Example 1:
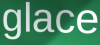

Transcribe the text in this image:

glace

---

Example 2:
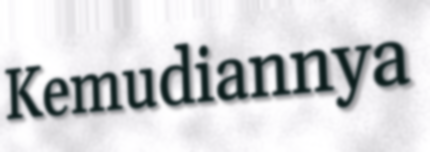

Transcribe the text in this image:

Kemudiannya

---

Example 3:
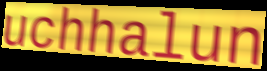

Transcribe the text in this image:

uchhalun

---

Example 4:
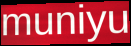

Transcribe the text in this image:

muniyu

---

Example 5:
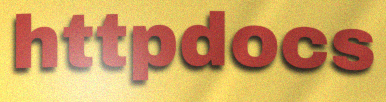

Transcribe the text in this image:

httpdocs